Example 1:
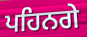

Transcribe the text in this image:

ਪਹਿਨਗੇ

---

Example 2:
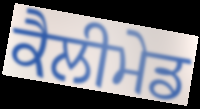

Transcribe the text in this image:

ਕੈਲੀਮੇਡ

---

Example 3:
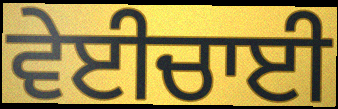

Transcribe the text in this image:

ਵੇਈਚਾਈ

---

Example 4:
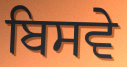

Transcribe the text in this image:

ਬਿਸਵੇ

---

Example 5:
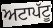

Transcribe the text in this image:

ਅਟਾਪੱਟੂ